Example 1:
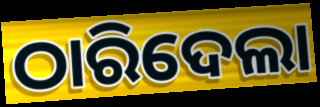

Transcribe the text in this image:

ଠାରିଦେଲା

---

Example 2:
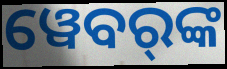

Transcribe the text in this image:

ୱେବର୍‌ଙ୍କ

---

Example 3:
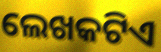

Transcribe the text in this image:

ଲେଖକଟିଏ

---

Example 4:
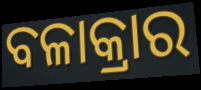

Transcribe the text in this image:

ବଳାକ୍ରାର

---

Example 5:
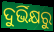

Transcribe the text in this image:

ଦୁର୍ଭିକ୍ଷରୁ